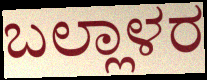
ಬಲ್ಲಾಳರ